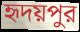
হৃদয়পুর